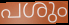
പശും